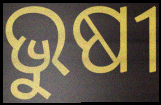
ଭୁଷୀ